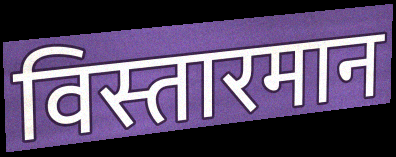
विस्तारमान